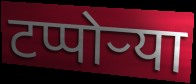
टप्पोऱ्या